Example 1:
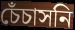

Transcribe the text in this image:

চেঁচাসনি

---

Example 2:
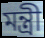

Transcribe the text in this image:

মন্ত্রী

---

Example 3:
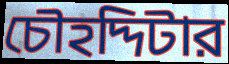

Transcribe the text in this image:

চৌহদ্দিটার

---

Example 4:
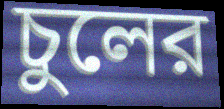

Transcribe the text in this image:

চুলের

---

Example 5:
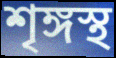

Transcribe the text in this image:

শৃঙ্গস্থ